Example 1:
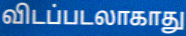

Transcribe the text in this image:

விடப்படலாகாது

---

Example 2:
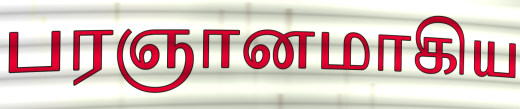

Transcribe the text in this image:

பரஞானமாகிய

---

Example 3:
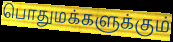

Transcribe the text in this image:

பொதுமக்களுக்கும்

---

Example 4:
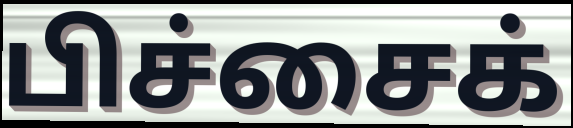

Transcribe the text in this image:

பிச்சைக்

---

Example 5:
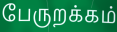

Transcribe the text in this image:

பேருறக்கம்